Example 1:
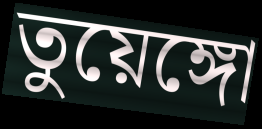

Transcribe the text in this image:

তুয়েঙ্গো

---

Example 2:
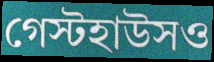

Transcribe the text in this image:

গেস্টহাউসও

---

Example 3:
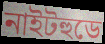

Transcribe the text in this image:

নাইটহুডে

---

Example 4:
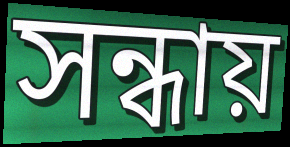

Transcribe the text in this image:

সন্ধায়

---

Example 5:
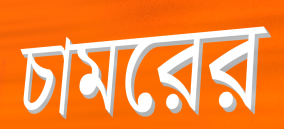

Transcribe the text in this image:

চামরের